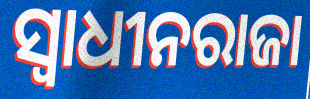
ସ୍ୱାଧୀନରାଜା